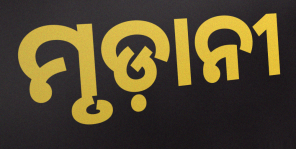
ମୃଡ଼ାନୀ